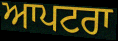
ਆਪਟਰਾ